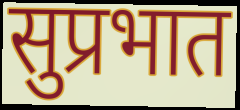
सुप्रभात